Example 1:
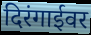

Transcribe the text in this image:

दिरंगाईवर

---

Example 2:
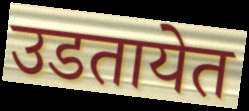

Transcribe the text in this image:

उडतायेत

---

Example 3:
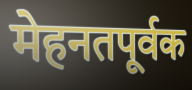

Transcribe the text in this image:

मेहनतपूर्वक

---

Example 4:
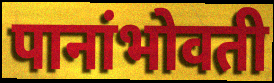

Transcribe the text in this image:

पानांभोवती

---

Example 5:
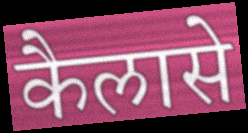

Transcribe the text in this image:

कैलासे